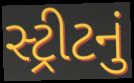
સ્ટ્રીટનું